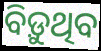
ବିଡ଼ୁଥିବ